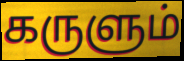
கருளும்